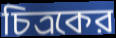
চিত্রকের